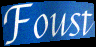
Foust